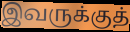
இவருக்குத்